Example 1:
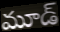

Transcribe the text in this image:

మూడ్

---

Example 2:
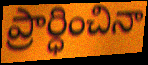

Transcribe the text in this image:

ప్రార్ధించినా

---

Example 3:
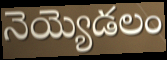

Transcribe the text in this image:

నెయ్యెడలం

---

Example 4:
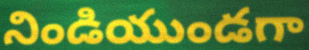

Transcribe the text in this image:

నిండియుండగా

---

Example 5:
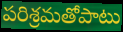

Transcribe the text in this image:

పరిశ్రమతోపాటు